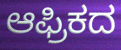
ಆಫ್ರಿಕದ